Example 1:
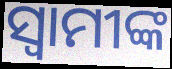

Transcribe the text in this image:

ସ୍ଵାମୀଙ୍କ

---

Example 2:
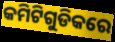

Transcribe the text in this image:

କମିଟିଗୁଡିକରେ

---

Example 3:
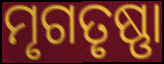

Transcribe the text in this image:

ମୃଗତୃଷ୍ଣା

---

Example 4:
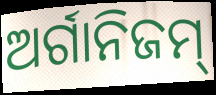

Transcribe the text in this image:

ଅର୍ଗାନିଜମ୍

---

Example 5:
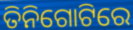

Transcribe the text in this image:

ତିନିଗୋଟିରେ